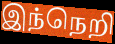
இந்நெறி